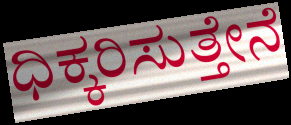
ಧಿಕ್ಕರಿಸುತ್ತೇನೆ